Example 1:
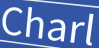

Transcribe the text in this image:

Charl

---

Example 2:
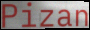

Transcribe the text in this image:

Pizan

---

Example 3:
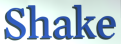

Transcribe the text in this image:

Shake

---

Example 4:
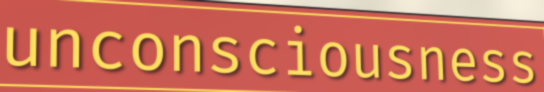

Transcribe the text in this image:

unconsciousness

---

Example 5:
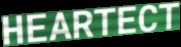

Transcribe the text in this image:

HEARTECT